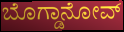
ಬೊಗ್ಡಾನೋವ್